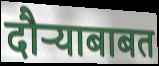
दौऱ्याबाबत